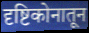
दृष्टिकोनातून